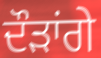
ਦੌੜਾਂਗੇ